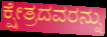
ಕ್ಷೇತ್ರದವರನ್ನು